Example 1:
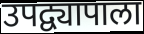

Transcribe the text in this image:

उपद्व्यापाला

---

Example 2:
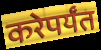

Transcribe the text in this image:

करेपर्यंत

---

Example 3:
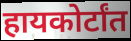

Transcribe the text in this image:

हायकोर्टांत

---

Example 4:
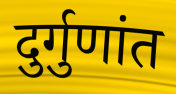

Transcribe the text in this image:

दुर्गुणांत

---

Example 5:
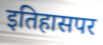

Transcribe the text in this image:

इतिहासपर